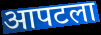
आपटला